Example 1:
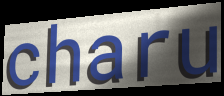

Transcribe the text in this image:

charu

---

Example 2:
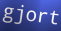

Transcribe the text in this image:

gjort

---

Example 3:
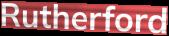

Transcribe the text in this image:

Rutherford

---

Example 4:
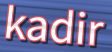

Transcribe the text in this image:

kadir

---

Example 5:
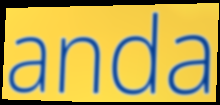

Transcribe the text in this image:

anda